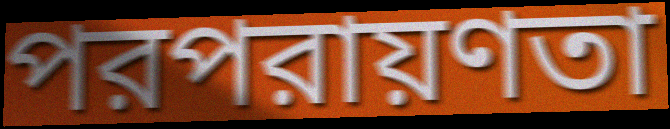
পরপরায়ণতা